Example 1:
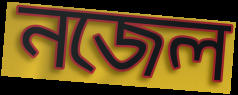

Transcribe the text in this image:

নজেল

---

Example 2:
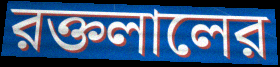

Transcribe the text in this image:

রক্তলালের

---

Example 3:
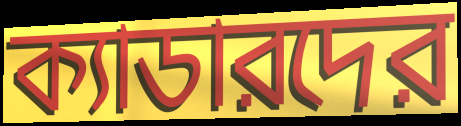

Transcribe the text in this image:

ক্যাডারদের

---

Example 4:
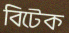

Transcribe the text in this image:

বিটেক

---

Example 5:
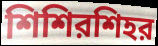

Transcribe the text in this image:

শিশিরশিহর